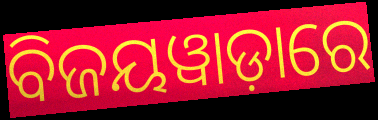
ବିଜୟୱାଡ଼ାରେ